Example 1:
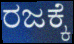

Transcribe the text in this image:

ರಜಕ್ಕೆ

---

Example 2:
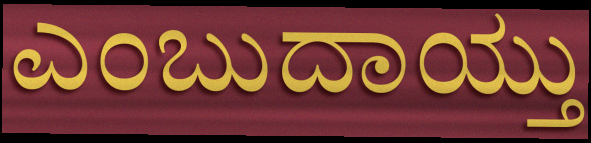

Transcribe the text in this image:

ಎಂಬುದಾಯ್ತು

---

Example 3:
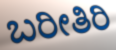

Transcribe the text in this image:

ಬರೀತಿರಿ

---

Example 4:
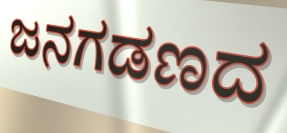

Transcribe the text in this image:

ಜನಗಡಣದ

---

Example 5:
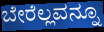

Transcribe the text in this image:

ಬೇರೆಲ್ಲವನ್ನೂ